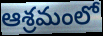
ఆశ్రమంలో